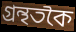
গ্ৰন্থতকৈ